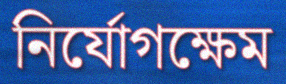
নির্যোগক্ষেম